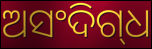
ଅସଂଦିଗ୍‌ଧ